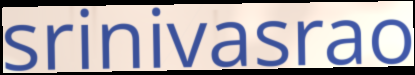
srinivasrao